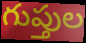
గుప్తుల